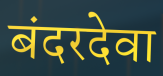
बंदरदेवा